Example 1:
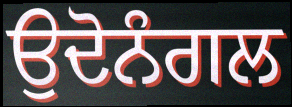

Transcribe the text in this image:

ਉਦੋਨੰਗਲ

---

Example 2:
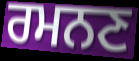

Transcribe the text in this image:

ਰਮਨਣ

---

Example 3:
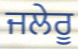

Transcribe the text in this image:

ਜਲੇਰੂ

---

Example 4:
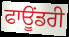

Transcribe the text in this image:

ਫਾਊਂਡਰੀ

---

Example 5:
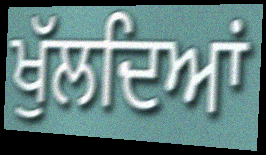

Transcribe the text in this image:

ਖੁੱਲਦਿਆਂ